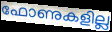
ഫോണുകളില്ല